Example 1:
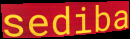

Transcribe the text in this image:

sediba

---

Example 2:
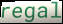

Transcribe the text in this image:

regal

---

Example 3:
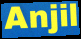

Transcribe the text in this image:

Anjil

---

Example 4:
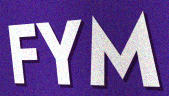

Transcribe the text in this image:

FYM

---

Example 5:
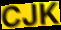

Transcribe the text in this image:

CJK